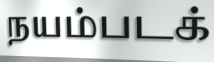
நயம்படக்